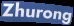
Zhurong